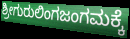
ಶ್ರೀಗುರುಲಿಂಗಜಂಗಮಕ್ಕೆ